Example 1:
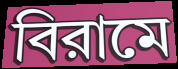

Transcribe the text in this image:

বিরামে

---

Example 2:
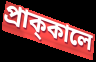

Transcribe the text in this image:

প্রাক্‌কালে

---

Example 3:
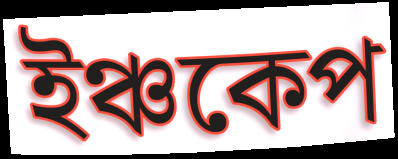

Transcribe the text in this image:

ইঞ্চকেপ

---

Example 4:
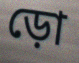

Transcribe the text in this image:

ড়ো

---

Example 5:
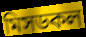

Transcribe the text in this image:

মিসডকল